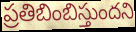
ప్రతిబింబిస్తుందని